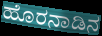
ಹೊರನಾಡಿನ